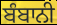
ਬੰਬਾਨੀ